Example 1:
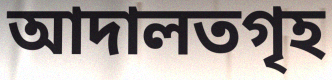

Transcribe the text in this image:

আদালতগৃহ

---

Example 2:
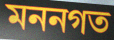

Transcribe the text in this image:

মননগত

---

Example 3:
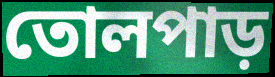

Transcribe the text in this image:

তোলপাড়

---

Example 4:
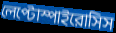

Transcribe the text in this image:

লেপ্টোস্পাইরোসিস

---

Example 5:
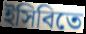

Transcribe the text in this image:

ইসিবিতে